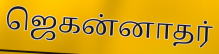
ஜெகன்னாதர்